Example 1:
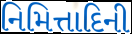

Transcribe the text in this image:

નિમિત્તાદિની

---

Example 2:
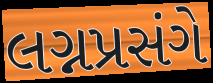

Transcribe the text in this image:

લગ્નપ્રસંગે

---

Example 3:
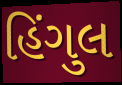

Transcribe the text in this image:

હિંગુલ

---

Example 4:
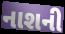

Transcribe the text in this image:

નાશની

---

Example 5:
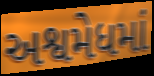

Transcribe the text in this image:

અશ્વમેધમાં